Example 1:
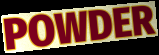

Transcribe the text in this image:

POWDER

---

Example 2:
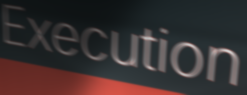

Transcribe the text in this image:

Execution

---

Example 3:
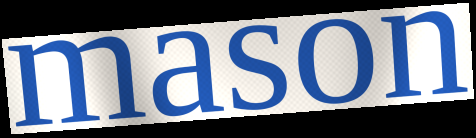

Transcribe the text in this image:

mason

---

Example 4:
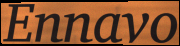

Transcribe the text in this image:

Ennavo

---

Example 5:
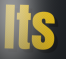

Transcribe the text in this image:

Its